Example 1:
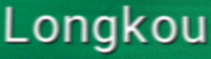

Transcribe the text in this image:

Longkou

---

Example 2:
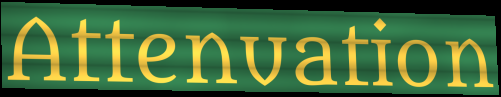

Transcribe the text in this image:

Attenuation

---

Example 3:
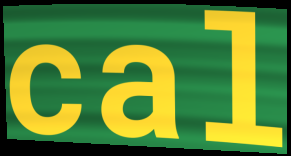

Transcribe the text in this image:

cal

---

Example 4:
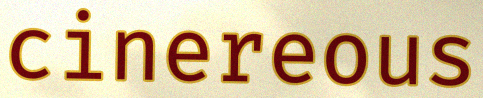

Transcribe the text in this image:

cinereous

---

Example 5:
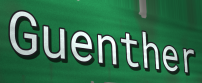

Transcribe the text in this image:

Guenther